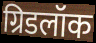
ग्रिडलॉक